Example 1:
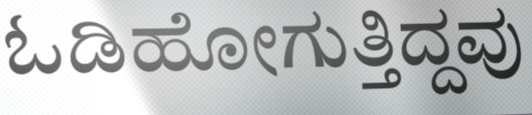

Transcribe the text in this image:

ಓಡಿಹೋಗುತ್ತಿದ್ದವು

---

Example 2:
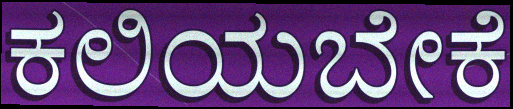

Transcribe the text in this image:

ಕಲಿಯಬೇಕೆ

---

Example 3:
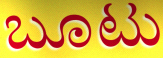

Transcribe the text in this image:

ಬೂಟು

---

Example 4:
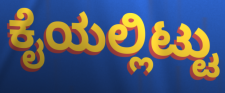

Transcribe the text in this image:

ಕೈಯಲ್ಲಿಟ್ಟು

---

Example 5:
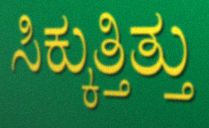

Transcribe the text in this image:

ಸಿಕ್ಕುತ್ತಿತ್ತು